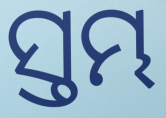
ସ୍ତମ୍ଭ